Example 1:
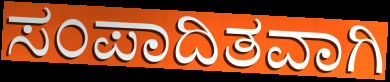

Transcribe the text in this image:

ಸಂಪಾದಿತವಾಗಿ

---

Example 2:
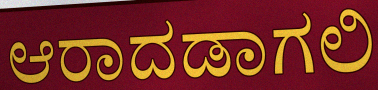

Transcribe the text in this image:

ಆರಾದಡಾಗಲಿ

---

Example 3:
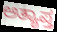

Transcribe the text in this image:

ಅತ್ಯಾಪ್ತ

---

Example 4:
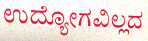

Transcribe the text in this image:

ಉದ್ಯೋಗವಿಲ್ಲದ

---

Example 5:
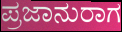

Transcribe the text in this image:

ಪ್ರಜಾನುರಾಗ